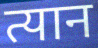
त्यान